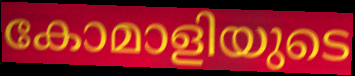
കോമാളിയുടെ